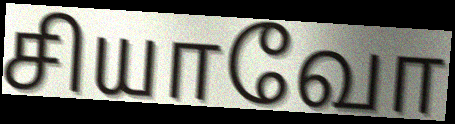
சியாவோ